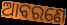
ଆବରଣେ